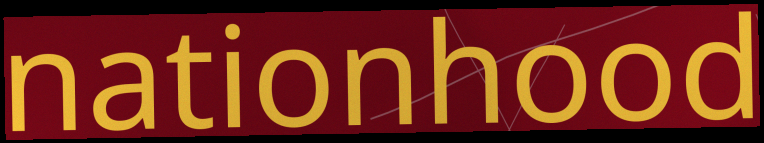
nationhood